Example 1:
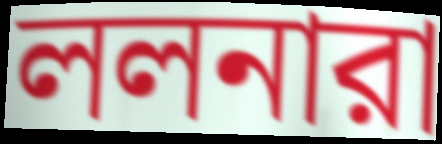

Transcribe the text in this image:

ললনারা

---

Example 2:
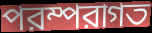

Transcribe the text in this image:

পরম্পরাগত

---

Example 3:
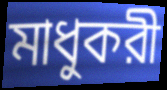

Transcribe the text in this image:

মাধুকরী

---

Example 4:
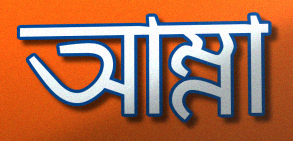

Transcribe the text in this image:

আম্না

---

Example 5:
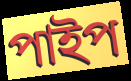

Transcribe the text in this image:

পাইপ